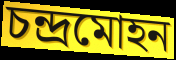
চন্দ্রমোহন